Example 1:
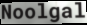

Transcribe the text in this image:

Noolgal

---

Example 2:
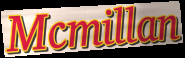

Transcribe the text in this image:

Mcmillan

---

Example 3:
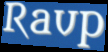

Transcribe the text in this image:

Raup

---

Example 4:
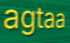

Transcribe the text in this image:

agtaa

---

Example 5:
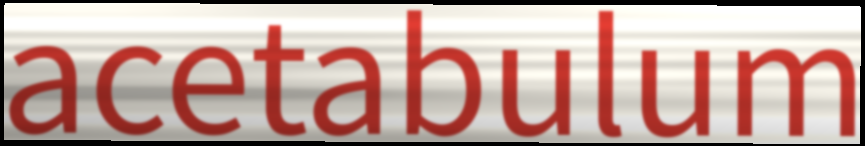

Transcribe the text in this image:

acetabulum